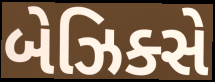
બેઝિક્સે